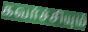
கவர்ச்சியும்